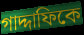
গাদ্দাফিকে